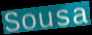
Sousa